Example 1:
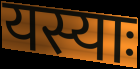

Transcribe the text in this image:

यस्याः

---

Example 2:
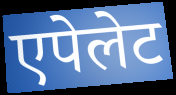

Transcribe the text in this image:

एपेलेट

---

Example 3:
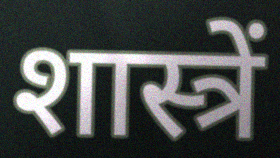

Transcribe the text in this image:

शास्त्रें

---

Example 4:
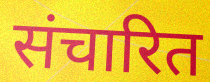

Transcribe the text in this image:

संचारित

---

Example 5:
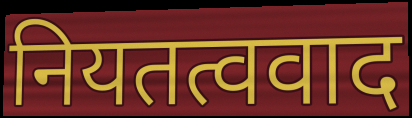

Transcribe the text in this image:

नियतत्ववाद